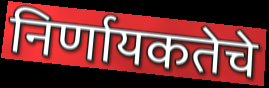
निर्णायकतेचे